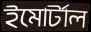
ইমোর্টাল